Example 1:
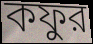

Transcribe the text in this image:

কফুর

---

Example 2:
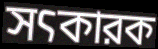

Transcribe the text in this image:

সৎকারক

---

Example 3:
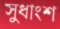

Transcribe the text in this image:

সুধাংশ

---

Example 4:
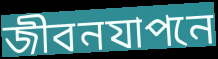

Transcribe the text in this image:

জীবনযাপনে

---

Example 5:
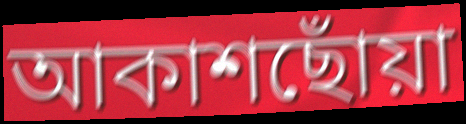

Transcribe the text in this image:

আকাশছোঁয়া